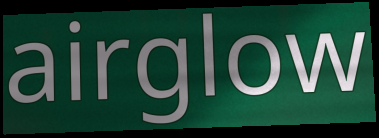
airglow